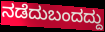
ನಡೆದುಬಂದದ್ದು